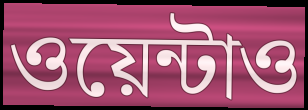
ওয়েন্টাও